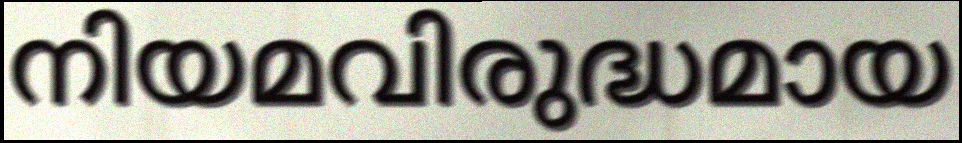
നിയമവിരുദ്ധമായ